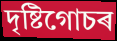
দৃষ্টিগোচৰ